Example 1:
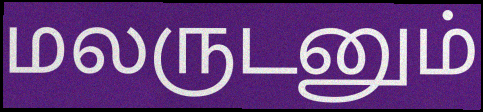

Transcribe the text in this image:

மலருடனும்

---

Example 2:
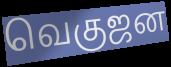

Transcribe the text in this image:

வெகுஜன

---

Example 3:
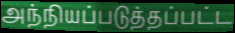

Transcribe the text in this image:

அந்நியப்படுத்தப்பட்ட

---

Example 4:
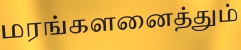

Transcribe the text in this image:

மரங்களனைத்தும்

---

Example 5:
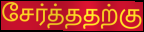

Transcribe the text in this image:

சேர்த்ததற்கு